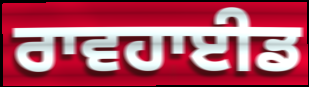
ਰਾਵਹਾਈਡ